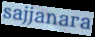
sajjanara